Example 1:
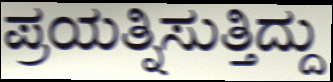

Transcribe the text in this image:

ಪ್ರಯತ್ನಿಸುತ್ತಿದ್ದು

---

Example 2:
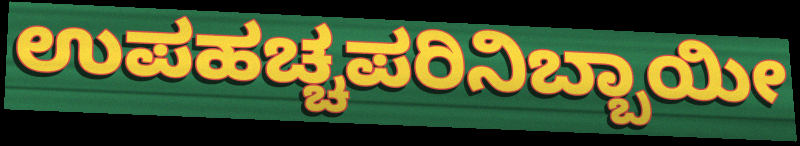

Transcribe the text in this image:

ಉಪಹಚ್ಚಪರಿನಿಬ್ಬಾಯೀ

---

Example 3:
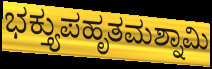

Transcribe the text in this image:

ಭಕ್ತ್ಯುಪಹೃತಮಶ್ನಾಮಿ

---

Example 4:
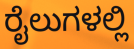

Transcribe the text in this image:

ರೈಲುಗಳಲ್ಲಿ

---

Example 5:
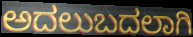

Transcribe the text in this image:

ಅದಲುಬದಲಾಗಿ